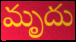
మృదు